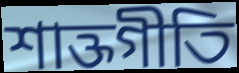
শাক্তগীতি